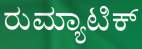
ರುಮ್ಯಾಟಿಕ್